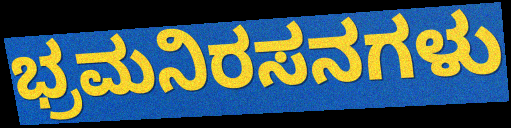
ಭ್ರಮನಿರಸನಗಳು